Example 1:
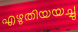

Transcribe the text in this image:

എഴുതിയയച്ചു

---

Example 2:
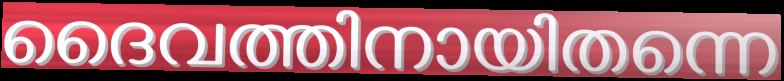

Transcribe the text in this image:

ദൈവത്തിനായിതന്നെ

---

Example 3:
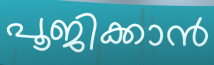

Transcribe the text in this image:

പൂജിക്കാൻ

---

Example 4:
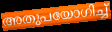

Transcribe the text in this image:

അതുപയോഗിച്ച്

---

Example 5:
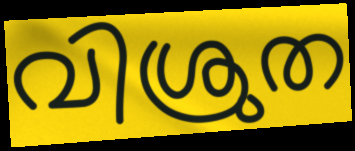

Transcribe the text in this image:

വിശ്രുത